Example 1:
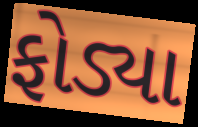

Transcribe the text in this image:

ફોડ્યા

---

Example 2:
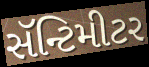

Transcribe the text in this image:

સૅન્ટિમીટર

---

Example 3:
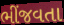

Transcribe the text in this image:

ભીંજવતા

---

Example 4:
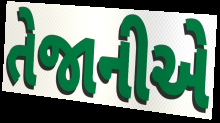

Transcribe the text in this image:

તેજાનીએ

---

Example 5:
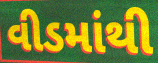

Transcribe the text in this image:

વીડમાંથી